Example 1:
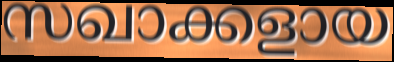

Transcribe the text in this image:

സഖാക്കളായ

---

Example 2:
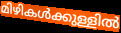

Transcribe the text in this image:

മിഴികൾക്കുള്ളിൽ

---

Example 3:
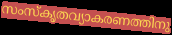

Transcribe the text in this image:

സംസ്കൃതവ്യാകരണത്തിനു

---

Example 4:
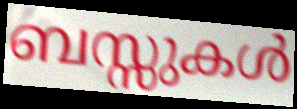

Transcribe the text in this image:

ബസ്സുകൾ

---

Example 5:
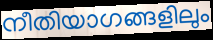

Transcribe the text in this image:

നീതിയാഗങ്ങളിലും